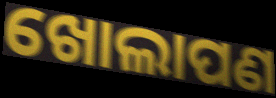
ଖୋଲାପଣ